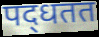
पद्धतत